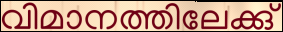
വിമാനത്തിലേക്കു്